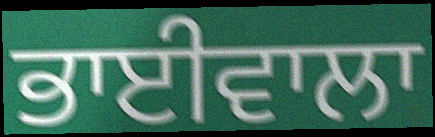
ਭਾਈਵਾਲਾ